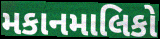
મકાનમાલિકો